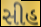
સીહ